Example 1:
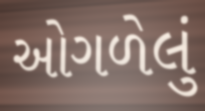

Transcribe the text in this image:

ઓગળેલું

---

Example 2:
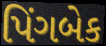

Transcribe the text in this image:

પિંગબેક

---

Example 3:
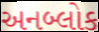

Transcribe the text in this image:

અનબ્લોક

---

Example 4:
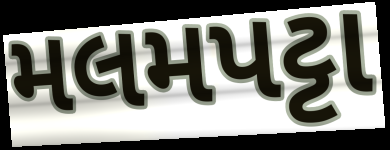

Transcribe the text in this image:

મલમપટ્ટા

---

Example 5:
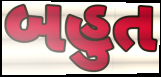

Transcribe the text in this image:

બહુત